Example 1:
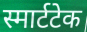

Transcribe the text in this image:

स्मार्टटेक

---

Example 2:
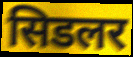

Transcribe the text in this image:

सिडलर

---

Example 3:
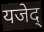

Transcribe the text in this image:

यजेद्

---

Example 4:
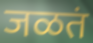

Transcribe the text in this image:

जळतं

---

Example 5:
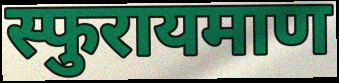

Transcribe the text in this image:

स्फुरायमाण